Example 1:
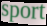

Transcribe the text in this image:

sport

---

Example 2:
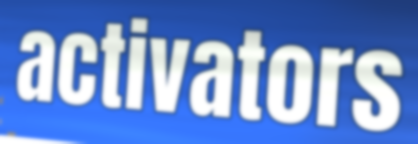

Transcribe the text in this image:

activators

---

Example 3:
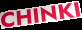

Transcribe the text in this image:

CHINKI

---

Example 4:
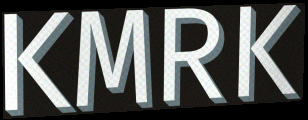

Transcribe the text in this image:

KMRK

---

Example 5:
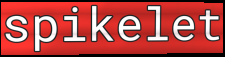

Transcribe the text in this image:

spikelet